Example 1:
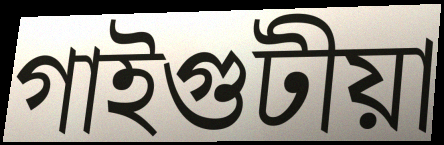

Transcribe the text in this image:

গাইগুটীয়া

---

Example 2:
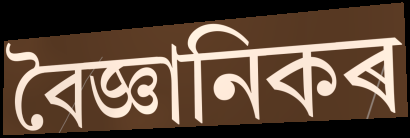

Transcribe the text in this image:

বৈজ্ঞানিকৰ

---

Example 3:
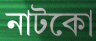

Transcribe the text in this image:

নাটকো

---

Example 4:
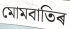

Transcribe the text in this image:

মোমবাতিৰ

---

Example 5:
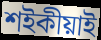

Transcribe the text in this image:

শইকীয়াই